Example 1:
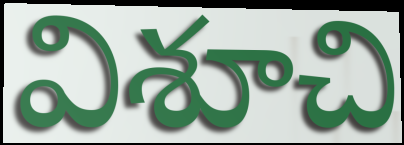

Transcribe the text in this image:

విశూచి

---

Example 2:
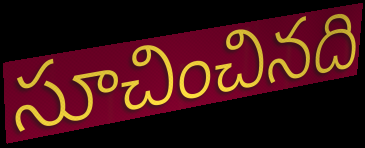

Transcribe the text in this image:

సూచించినది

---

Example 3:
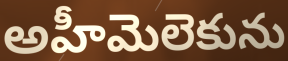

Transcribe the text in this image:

అహీమెలెకును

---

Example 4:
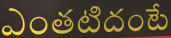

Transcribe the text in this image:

ఎంతటిదంటే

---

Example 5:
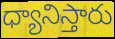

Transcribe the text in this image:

ధ్యానిస్తారు